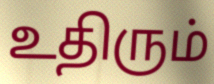
உதிரும்